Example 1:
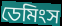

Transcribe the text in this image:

ডেমিংস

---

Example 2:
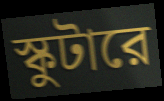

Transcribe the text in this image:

স্কুটারে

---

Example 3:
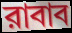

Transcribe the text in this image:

রাবাব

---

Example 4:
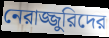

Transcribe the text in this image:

নেরাজ্জুরিদের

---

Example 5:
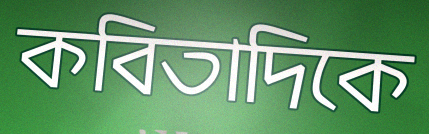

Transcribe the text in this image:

কবিতাদিকে